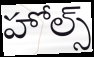
హోల్స్